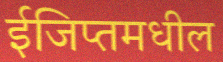
ईजिप्तमधील